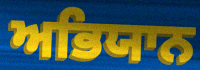
ਅਭਿਯਾਨ